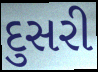
દુસરી